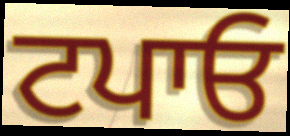
ਟਪਾਓ